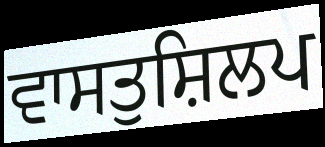
ਵਾਸਤੁਸ਼ਿਲਪ